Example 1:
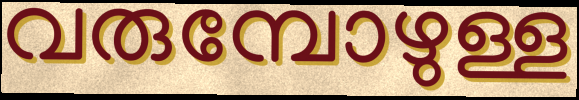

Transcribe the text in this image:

വരുമ്പോഴുള്ള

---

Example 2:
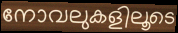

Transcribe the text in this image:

നോവലുകളിലൂടെ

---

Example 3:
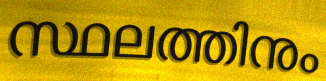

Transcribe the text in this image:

സ്ഥലത്തിനും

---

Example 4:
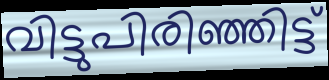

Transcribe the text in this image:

വിട്ടുപിരിഞ്ഞിട്ട്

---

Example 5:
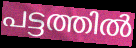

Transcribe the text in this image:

പട്ടത്തിൽ